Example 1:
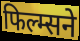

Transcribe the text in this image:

फिल्म्सने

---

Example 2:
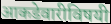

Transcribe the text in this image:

आकडेवारीविषयी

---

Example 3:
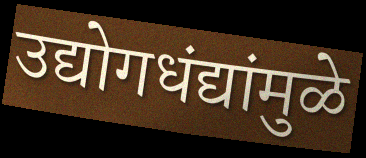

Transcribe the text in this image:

उद्योगधंद्यांमुळे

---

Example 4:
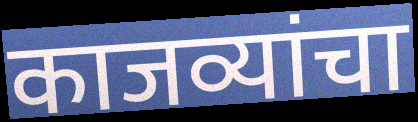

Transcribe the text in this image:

काजव्यांचा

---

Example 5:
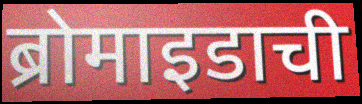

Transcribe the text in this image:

ब्रोमाइडाची